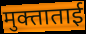
मुक्ताताई